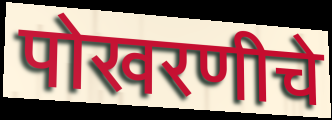
पोखरणीचे